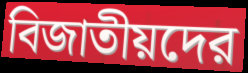
বিজাতীয়দের